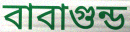
বাবাগুন্ড